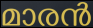
മാരൻ